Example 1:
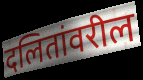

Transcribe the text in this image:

दलितांवरील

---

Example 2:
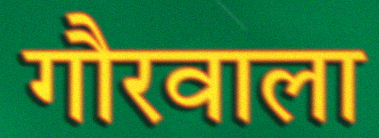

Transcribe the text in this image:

गौरवाला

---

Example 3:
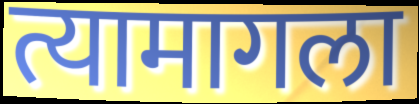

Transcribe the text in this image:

त्यामागला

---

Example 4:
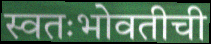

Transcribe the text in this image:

स्वतःभोवतीची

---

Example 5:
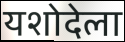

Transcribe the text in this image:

यशोदेला